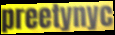
preetynyc